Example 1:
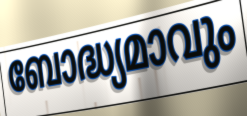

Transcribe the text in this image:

ബോദ്ധ്യമാവും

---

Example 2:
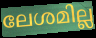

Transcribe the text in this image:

ലേശമില്ല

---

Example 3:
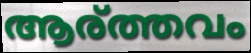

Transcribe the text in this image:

ആര്ത്തവം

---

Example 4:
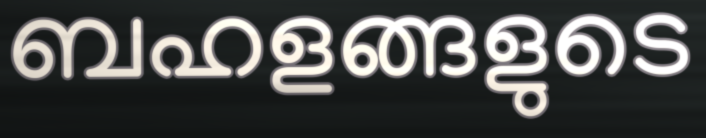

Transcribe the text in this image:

ബഹളങ്ങളുടെ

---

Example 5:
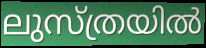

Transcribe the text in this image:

ലുസ്ത്രയിൽ